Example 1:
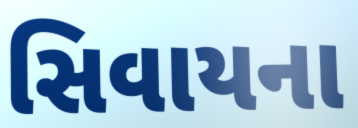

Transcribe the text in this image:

સિવાયના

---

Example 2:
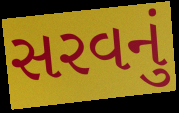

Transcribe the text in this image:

સરવનું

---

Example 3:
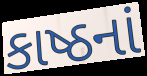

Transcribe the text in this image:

કાષ્ઠનાં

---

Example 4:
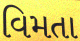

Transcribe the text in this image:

વિમતા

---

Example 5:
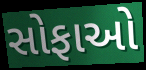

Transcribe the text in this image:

સોફાઓ